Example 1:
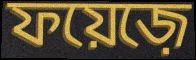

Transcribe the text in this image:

ফয়েজ়ে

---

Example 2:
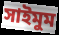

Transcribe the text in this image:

সাইমুম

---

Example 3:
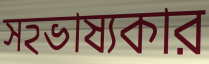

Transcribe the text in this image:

সহভাষ্যকার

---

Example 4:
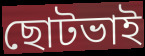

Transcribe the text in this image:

ছোটভাই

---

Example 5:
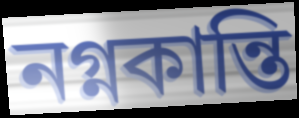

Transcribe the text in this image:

নগ্নকান্তি